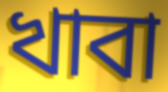
খাবা